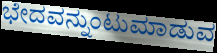
ಭೇದವನ್ನುಂಟುಮಾಡುವ